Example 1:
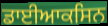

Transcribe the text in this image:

ਡਾਈਆਕਸਿਨ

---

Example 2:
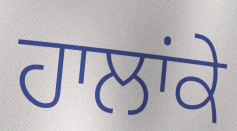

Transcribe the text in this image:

ਹਾਲਾਂਕੇ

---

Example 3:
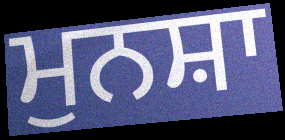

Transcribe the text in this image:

ਮੁਨਸ਼ਾ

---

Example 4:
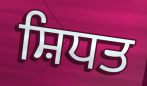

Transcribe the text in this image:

ਸ਼ਿਧਤ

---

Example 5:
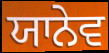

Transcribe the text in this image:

ਯਾਨੇਵ